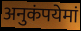
अनुकंपयेमां